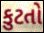
કુટતો